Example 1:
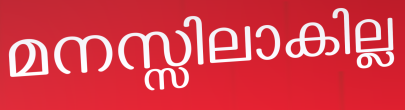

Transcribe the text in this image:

മനസ്സിലാകില്ല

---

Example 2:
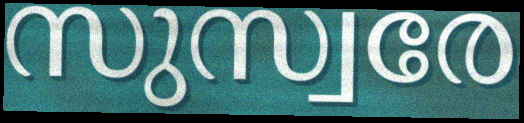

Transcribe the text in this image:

സുസ്വരേ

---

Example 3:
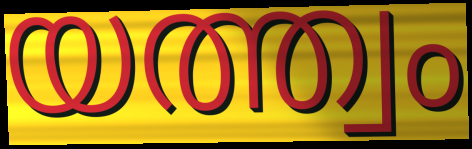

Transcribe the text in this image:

യത്ത്വം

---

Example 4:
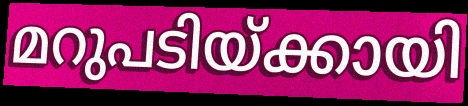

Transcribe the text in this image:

മറുപടിയ്ക്കായി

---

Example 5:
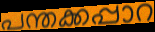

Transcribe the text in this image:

പന്തക്കപ്പാറ